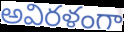
అవిరళంగా